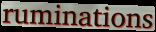
ruminations